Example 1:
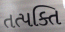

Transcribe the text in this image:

તત્પક્તિ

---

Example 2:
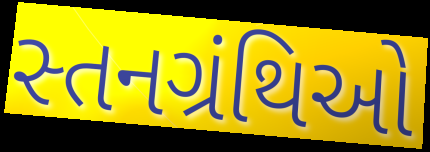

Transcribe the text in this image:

સ્તનગ્રંથિઓ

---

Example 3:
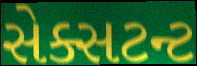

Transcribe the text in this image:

સેક્સટન્ટ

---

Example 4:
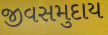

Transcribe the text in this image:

જીવસમુદાય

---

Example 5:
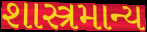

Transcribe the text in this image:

શાસ્ત્રમાન્ય